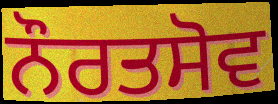
ਨੌਰਤਸੋਵ